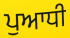
ਪੁਆਧੀ